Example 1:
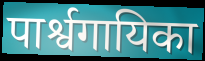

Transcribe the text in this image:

पार्श्वगायिका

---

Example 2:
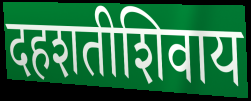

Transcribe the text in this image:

दहशतीशिवाय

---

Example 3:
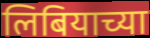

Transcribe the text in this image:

लिबियाच्या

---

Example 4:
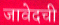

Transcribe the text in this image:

जावेदची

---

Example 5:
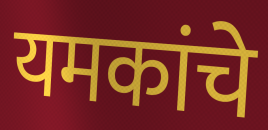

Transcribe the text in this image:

यमकांचे